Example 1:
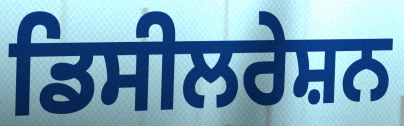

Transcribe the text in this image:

ਡਿਸੀਲਰੇਸ਼ਨ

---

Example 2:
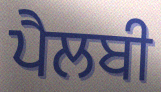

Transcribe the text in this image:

ਪੈਲਬੀ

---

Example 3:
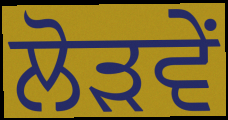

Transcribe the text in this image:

ਲੋੜਵੇਂ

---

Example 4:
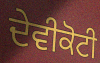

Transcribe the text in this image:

ਦੇਵੀਕੋਟੀ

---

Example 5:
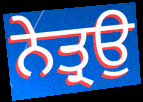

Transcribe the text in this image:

ਨੇਤ੍ਰਉ